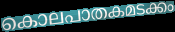
കൊലപാതകമടക്കം